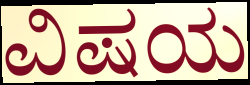
ವಿಷಯ